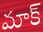
మాక్